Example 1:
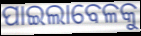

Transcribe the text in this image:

ପାଇଲାବେଳକୁ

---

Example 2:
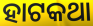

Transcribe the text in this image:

ହାଟକଥା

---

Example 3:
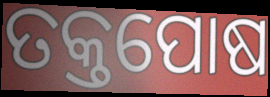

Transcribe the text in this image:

ତକ୍ତପୋଷ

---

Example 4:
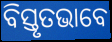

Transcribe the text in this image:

ବିସ୍ତୃତଭାବେ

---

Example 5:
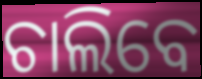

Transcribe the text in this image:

ଚାଲିବେ